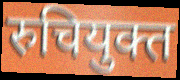
रुचियुक्त